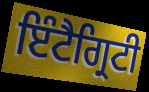
ਇੰਟੈਗ੍ਰਿਟੀ